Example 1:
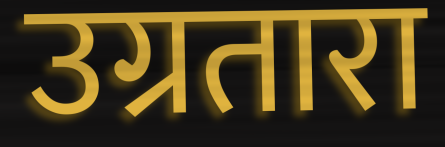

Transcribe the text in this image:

उग्रतारा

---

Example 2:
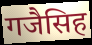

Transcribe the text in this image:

गजैसिह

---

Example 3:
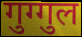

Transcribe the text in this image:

गुग्‍गुल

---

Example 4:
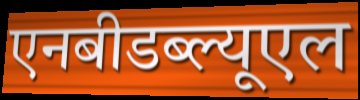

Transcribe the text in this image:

एनबीडब्ल्यूएल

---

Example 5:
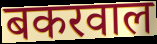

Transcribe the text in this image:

बकरवाल